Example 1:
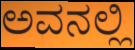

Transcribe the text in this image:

ಅವನಲ್ಲಿ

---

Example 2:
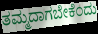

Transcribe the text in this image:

ತಮ್ಮದಾಗಬೇಕೆಂದು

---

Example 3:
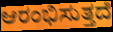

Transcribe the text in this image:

ಆರಂಭಿಸುತ್ತದೆ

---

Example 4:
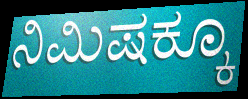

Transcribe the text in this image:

ನಿಮಿಷಕ್ಕೂ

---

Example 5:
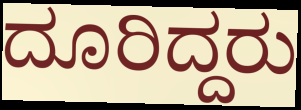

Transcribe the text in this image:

ದೂರಿದ್ದರು